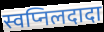
स्वप्निलदादा